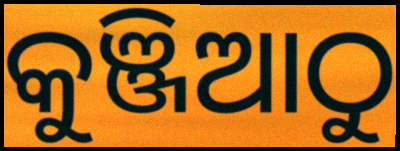
କୁଞ୍ଜିଆଠୁ